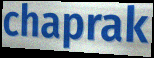
chaprak